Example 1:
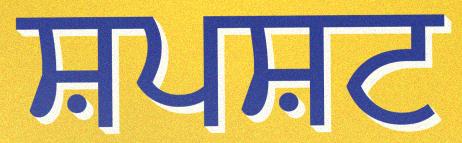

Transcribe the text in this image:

ਸ਼ਪਸ਼ਟ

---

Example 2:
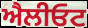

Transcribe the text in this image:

ਐਲੀਓਟ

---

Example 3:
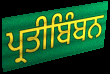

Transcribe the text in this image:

ਪ੍ਰਤੀਬਿੰਬਨ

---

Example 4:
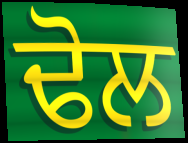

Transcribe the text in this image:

ਢੋਲ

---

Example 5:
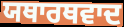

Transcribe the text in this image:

ਯਥਾਰਥਵਾਦ